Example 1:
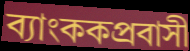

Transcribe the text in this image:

ব্যাংককপ্রবাসী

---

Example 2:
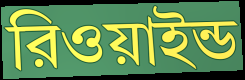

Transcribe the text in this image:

রিওয়াইন্ড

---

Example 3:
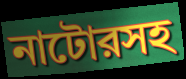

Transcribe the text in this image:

নাটোরসহ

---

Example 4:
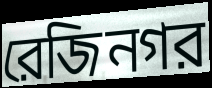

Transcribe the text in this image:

রেজিনগর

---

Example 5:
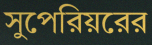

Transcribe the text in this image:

সুপেরিয়রের